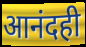
आनंदही